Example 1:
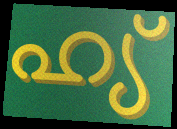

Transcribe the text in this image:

ഹ്യ്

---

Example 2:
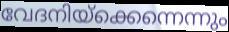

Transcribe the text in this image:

വേദനിയ്ക്കെന്നെന്നും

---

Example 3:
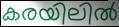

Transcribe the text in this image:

കരയിലിൽ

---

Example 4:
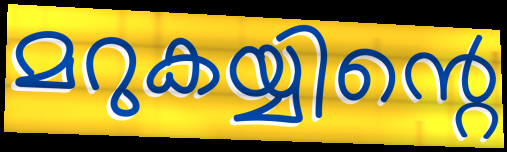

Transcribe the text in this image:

മറുകയ്യിന്റെ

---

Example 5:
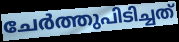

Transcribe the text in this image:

ചേർത്തുപിടിച്ചത്